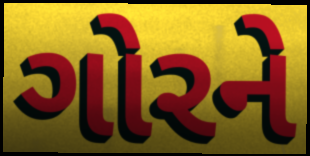
ગોરને